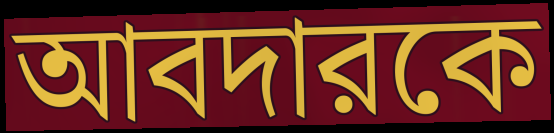
আবদারকে